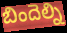
బిందెల్ని